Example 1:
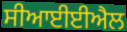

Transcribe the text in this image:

ਸੀਆਈਈਐਲ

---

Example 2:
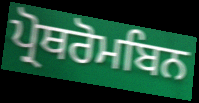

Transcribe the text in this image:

ਪ੍ਰੋਥਰੋਮਬਿਨ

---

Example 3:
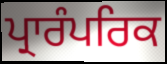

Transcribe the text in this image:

ਪ੍ਰਾਰੰਪਰਿਕ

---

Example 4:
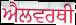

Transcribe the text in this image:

ਐਲਵਰਥੀ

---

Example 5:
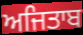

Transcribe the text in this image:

ਅਜਿਤਾਬ